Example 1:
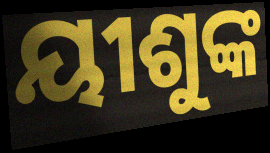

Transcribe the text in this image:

ୟୀଶୁଙ୍କ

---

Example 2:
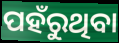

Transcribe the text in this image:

ପହଁରୁଥିବା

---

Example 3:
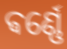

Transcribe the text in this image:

ଵର୍ଣ୍ଣେ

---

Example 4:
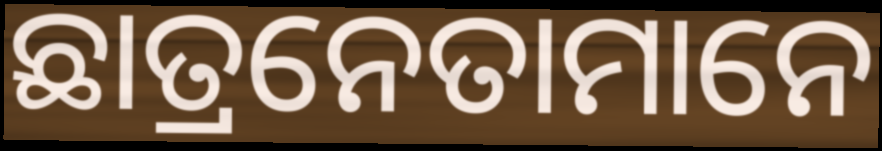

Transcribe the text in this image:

ଛାତ୍ରନେତାମାନେ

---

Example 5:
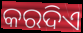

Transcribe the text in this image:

କରଦିଏ